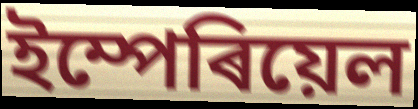
ইম্পেৰিয়েল